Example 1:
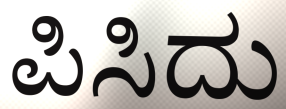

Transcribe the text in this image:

ಪಿಸಿದು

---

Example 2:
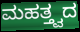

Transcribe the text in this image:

ಮಹತ್ತ್ವದ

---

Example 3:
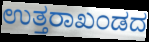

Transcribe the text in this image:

ಉತ್ತರಾಖಂಡದ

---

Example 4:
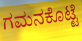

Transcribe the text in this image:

ಗಮನಕೊಟ್ಟೆ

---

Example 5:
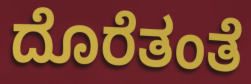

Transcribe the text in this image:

ದೊರೆತಂತೆ